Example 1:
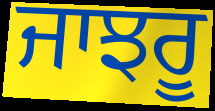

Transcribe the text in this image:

ਜਾਝਰੂ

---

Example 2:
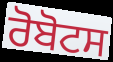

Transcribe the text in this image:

ਰੋਬੋਟਸ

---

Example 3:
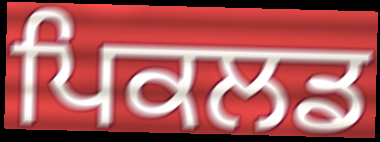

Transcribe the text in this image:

ਪਿਕਲਡ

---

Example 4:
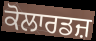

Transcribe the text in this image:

ਕੋਲਾਰਡਜ਼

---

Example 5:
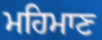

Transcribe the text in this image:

ਮਹਿਮਾਣ